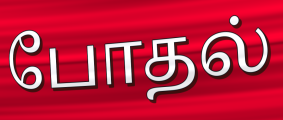
போதல்